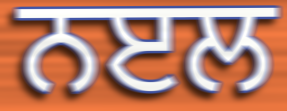
ਨੲਲ